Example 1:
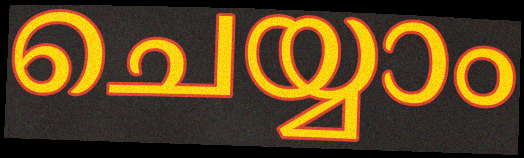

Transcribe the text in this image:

ചെയ്യാം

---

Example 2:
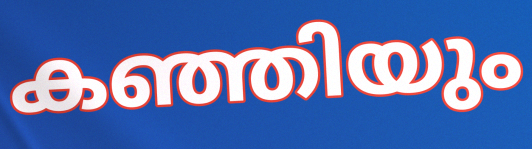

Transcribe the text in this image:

കഞ്ഞിയും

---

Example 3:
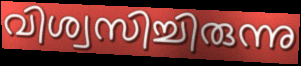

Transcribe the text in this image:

വിശ്വസിച്ചിരുന്നു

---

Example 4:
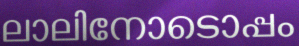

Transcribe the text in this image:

ലാലിനോടൊപ്പം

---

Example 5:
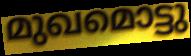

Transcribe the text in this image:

മുഖമൊട്ടു